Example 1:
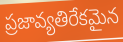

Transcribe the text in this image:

ప్రజావ్యతిరేకమైన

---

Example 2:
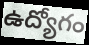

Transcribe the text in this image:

ఉద్యోగం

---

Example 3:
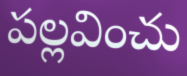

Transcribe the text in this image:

పల్లవించు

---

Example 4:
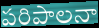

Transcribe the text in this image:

పరిపాలనా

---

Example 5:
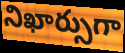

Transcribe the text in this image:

నిఖార్సుగా